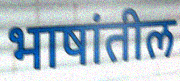
भाषांतील